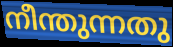
നീന്തുന്നതു